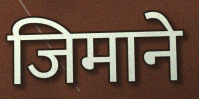
जिमाने